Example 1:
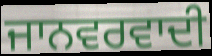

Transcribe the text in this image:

ਜਾਨਵਰਵਾਦੀ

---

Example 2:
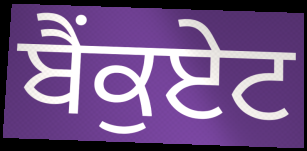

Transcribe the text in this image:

ਬੈਂਕੁਏਟ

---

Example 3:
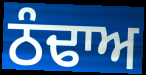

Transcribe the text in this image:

ਠੰਢਾਅ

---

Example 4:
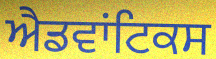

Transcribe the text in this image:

ਐਡਵਾਂਟਿਕਸ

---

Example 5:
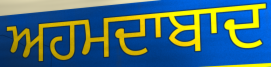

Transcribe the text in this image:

ਅਹਮਦਾਬਾਦ